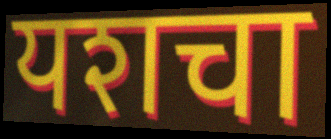
यशचा